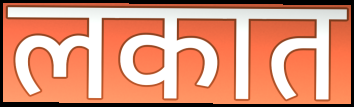
लकात